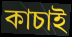
কাচাই